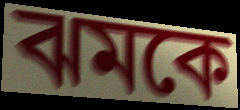
ঝমকে